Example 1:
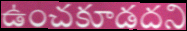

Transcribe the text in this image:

ఉంచకూడదని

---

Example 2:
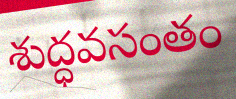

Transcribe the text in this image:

శుద్ధవసంతం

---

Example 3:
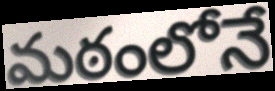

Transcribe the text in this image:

మఠంలోనే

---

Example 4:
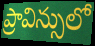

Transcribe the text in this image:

ప్రావిన్సులో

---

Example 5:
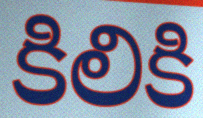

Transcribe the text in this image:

కిలికి